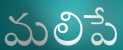
మలిపే